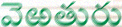
వెఱతురు